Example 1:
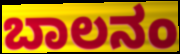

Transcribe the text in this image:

ಬಾಲನಂ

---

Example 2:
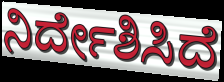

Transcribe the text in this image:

ನಿರ್ದೇಶಿಸಿದೆ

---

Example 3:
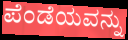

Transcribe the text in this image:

ಪೆಂಡೆಯವನ್ನು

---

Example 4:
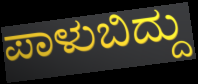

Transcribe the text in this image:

ಪಾಳುಬಿದ್ದು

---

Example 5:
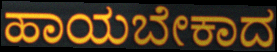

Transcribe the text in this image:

ಹಾಯಬೇಕಾದ